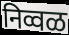
निव्‍वळ